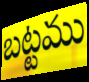
బట్టము